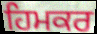
ਹਿਮਕਰ